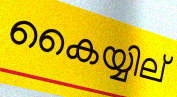
കൈയ്യില്